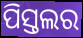
ପିସ୍ତଲର